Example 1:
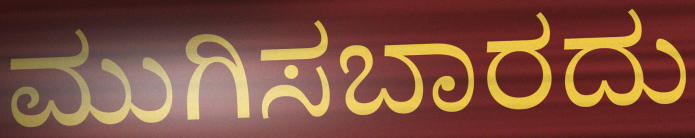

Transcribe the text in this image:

ಮುಗಿಸಬಾರದು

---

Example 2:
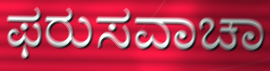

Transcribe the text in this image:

ಫರುಸವಾಚಾ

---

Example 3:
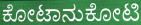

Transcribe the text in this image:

ಕೋಟಾನುಕೋಟಿ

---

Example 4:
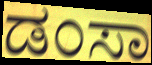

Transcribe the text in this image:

ಡಂಸಾ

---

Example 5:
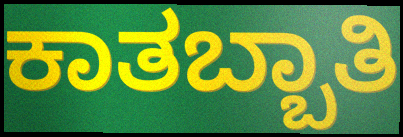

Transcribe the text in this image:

ಕಾತಬ್ಬಾತಿ